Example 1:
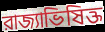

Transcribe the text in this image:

রাজ্যাভিষিক্ত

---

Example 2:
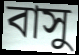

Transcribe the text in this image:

বাসু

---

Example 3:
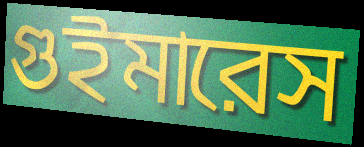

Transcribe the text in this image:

গুইমারেস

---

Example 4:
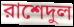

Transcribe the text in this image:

রাশেদুল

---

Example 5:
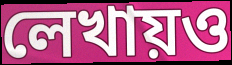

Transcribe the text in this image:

লেখায়ও